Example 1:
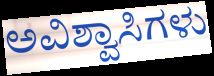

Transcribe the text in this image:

ಅವಿಶ್ವಾಸಿಗಳು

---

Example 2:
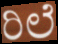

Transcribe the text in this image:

ರಿಲೆ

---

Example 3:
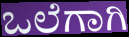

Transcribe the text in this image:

ಒಲೆಗಾಗಿ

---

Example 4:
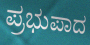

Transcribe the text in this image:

ಪ್ರಭುಪಾದ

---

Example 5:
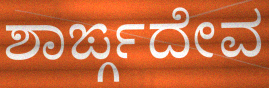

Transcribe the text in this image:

ಶಾರ್ಙ್ಗದೇವ